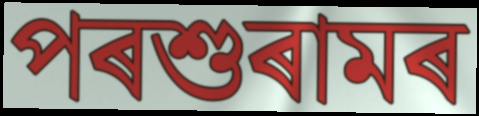
পৰশুৰামৰ